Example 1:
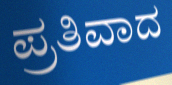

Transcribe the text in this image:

ಪ್ರತಿವಾದ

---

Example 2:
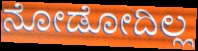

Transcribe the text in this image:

ನೋಡೋದಿಲ್ಲ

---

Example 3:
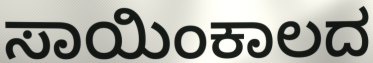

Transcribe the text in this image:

ಸಾಯಿಂಕಾಲದ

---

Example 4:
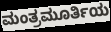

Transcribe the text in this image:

ಮಂತ್ರಮೂರ್ತಿಯ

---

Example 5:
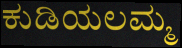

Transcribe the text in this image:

ಕುಡಿಯಲಮ್ಮ